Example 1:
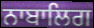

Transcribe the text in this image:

ਨਾਬਾਲਿਗ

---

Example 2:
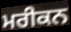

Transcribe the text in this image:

ਮਰੀਕਨ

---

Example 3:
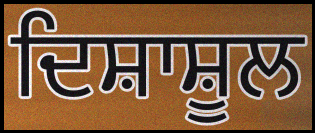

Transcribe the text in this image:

ਦਿਸ਼ਾਸ਼ੂਲ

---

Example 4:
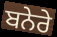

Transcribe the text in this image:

ਬਨੇਰੇ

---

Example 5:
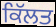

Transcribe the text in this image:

ਕਿੱਲਤ